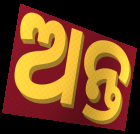
ଅନ୍ତ